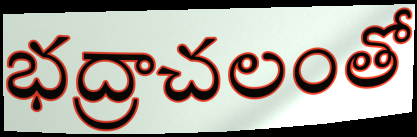
భద్రాచలంతో